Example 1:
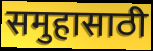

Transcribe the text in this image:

समुहासाठी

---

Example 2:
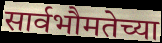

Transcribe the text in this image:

सार्वभौमतेच्या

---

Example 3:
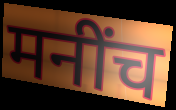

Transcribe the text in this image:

मनींच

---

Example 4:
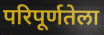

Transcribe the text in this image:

परिपूर्णतेला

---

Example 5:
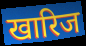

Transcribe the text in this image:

खारिज